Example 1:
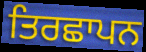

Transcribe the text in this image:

ਤਿਰਛਾਪਨ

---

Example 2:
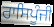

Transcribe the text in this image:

ਰਾਸਿਪੂੰਜੀ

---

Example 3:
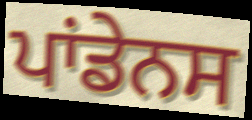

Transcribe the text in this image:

ਪਾਂਡੇਨਸ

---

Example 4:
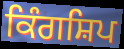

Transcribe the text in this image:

ਕਿੰਗਸ਼ਿਪ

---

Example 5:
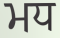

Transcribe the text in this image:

ਮਧ